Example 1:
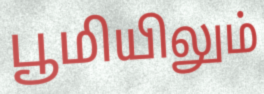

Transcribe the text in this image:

பூமியிலும்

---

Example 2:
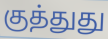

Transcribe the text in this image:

குத்துது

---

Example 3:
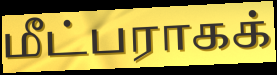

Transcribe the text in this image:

மீட்பராகக்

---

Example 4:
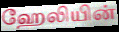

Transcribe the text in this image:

ஹேலியின்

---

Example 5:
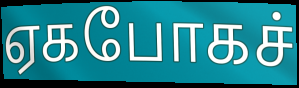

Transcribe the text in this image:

ஏகபோகச்